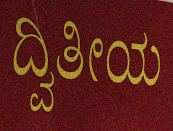
ದ್ವಿತೀಯ